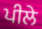
ਪੀਲੇ